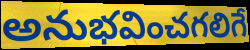
అనుభవించగలిగే